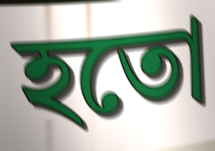
হতো